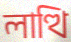
লাত্থি